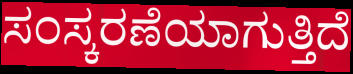
ಸಂಸ್ಕರಣೆಯಾಗುತ್ತಿದೆ